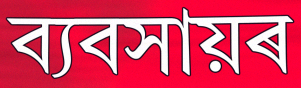
ব্যবসায়ৰ